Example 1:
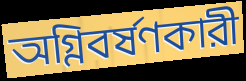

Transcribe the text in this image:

অগ্নিবর্ষণকারী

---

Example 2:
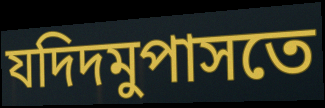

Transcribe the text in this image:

যদিদমুপাসতে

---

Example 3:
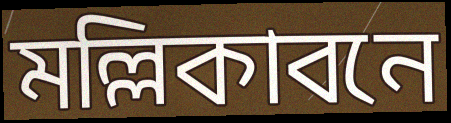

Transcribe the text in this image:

মল্লিকাবনে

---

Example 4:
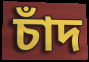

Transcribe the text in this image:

চাঁদ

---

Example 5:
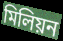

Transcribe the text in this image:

মিলিয়ন